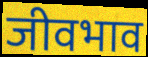
जीवभाव